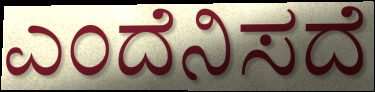
ಎಂದೆನಿಸದೆ